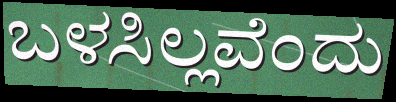
ಬಳಸಿಲ್ಲವೆಂದು